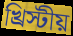
খ্রিস্টীয়